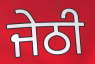
ਜੇਠੀ